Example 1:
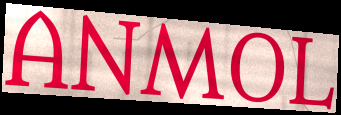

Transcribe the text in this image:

ANMOL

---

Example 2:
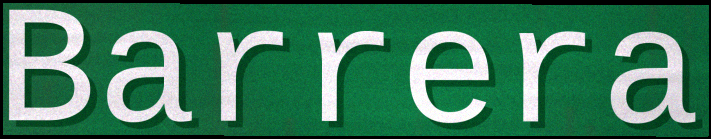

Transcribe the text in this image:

Barrera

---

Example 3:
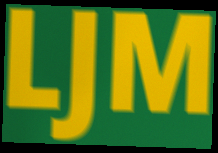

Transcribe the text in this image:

LJM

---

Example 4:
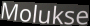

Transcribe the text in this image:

Molukse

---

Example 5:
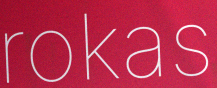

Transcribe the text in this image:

rokas